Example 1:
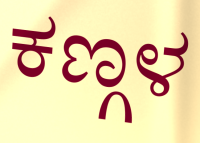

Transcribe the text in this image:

ಕಣ್ಗಳ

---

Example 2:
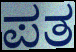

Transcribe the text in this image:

ಪತ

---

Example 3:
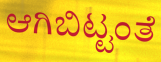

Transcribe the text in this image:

ಆಗಿಬಿಟ್ಟಂತೆ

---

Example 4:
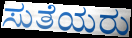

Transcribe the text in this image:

ಸುತೆಯರು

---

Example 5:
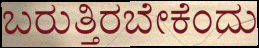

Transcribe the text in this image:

ಬರುತ್ತಿರಬೇಕೆಂದು